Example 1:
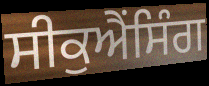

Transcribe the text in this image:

ਸੀਕੁਐਂਸਿੰਗ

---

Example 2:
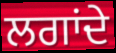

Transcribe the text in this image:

ਲਗਾਂਦੇ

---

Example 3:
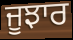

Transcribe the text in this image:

ਜੂਝਾਰ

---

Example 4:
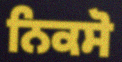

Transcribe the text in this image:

ਨਿਕਸੋ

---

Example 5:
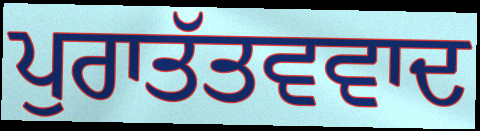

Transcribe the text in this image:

ਪੁਰਾਤੱਤਵਵਾਦ